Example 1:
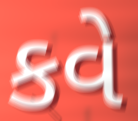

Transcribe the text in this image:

કવે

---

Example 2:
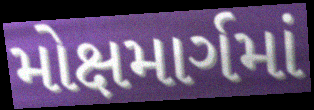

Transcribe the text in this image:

મોક્ષમાર્ગમાં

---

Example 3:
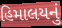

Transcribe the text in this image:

હિમાલયનું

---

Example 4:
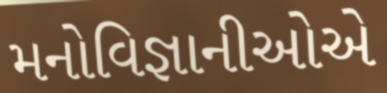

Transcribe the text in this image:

મનોવિજ્ઞાનીઓએ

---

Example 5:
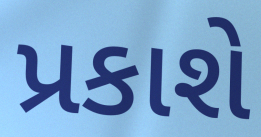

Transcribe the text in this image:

પ્રકાશે